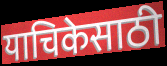
याचिकेसाठी